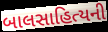
બાલસાહિત્યની